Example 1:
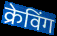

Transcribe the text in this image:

क्रेविंग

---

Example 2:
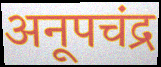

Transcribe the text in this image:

अनूपचंद्र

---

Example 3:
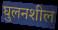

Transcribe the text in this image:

घुलनशील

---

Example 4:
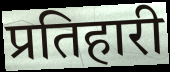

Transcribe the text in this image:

प्रतिहारी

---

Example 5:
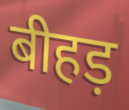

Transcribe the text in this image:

बीहड़